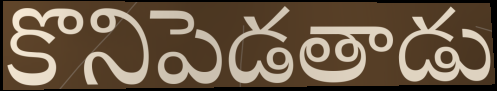
కొనిపెడతాడు